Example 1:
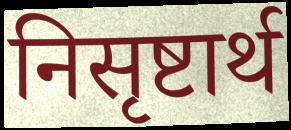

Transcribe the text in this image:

निसृष्टार्थ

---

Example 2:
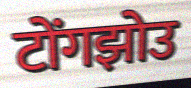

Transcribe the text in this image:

टोंगझोउ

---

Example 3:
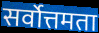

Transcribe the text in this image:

सर्वोत्तमता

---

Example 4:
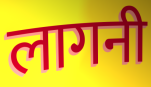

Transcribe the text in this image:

लागनी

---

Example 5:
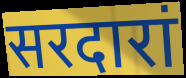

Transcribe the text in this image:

सरदारां